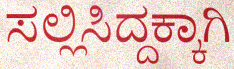
ಸಲ್ಲಿಸಿದ್ದಕ್ಕಾಗಿ